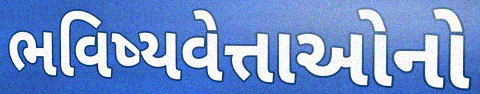
ભવિષ્યવેત્તાઓનો